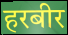
हरबीर